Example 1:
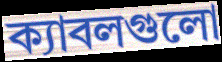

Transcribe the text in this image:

ক্যাবলগুলো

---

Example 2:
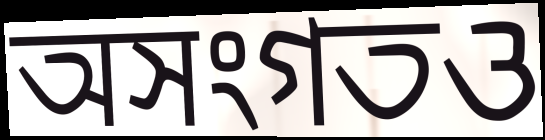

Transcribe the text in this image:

অসংগতও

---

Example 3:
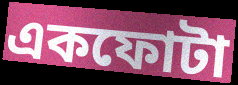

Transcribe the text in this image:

একফোটা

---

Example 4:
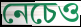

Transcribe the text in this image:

নেচেও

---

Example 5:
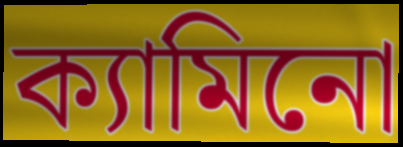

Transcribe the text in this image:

ক্যামিনো